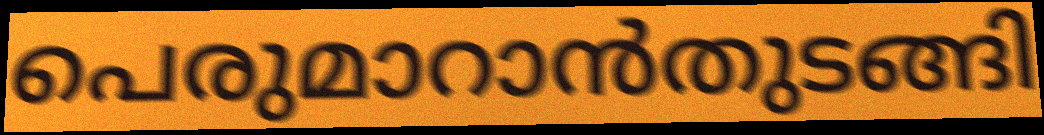
പെരുമാറാൻതുടങ്ങി